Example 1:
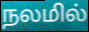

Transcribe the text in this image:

நலமில்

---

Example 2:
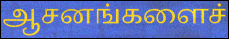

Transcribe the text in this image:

ஆசனங்களைச்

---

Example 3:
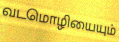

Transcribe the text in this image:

வடமொழியையும்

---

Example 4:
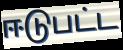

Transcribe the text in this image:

ஈடுபட்ட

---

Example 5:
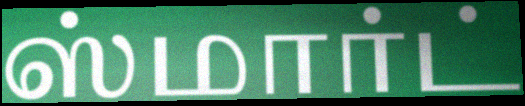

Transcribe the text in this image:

ஸ்மார்ட்